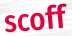
scoff